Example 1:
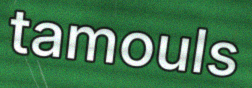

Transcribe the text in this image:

tamouls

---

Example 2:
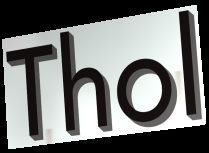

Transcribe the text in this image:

Thol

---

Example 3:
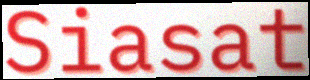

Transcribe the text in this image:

Siasat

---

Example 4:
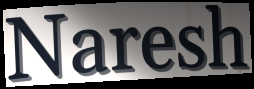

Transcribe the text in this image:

Naresh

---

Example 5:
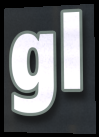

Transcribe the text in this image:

gl